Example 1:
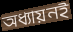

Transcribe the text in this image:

অধ্যায়নই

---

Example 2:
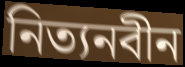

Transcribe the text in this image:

নিত্যনবীন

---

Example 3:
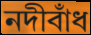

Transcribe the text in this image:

নদীবাঁধ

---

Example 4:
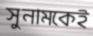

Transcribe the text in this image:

সুনামকেই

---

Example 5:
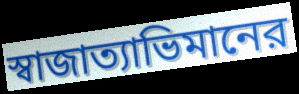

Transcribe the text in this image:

স্বাজাত্যাভিমানের